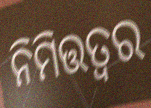
ନିମିତ୍ତତ୍ଵର